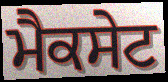
ਮੈਕਸੇਟ